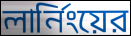
লার্নিংয়ের